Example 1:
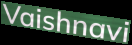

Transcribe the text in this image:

Vaishnavi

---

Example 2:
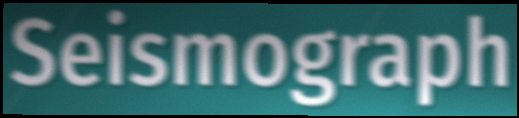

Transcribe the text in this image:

Seismograph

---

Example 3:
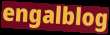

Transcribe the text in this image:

engalblog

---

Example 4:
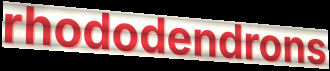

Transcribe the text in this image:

rhododendrons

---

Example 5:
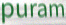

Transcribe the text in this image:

puram